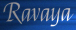
Ravaya